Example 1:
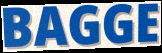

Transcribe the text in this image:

BAGGE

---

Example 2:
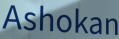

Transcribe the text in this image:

Ashokan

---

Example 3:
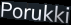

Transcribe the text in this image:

Porukki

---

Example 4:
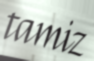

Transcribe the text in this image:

tamiz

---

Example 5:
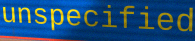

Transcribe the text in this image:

unspecified